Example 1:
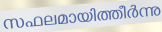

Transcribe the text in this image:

സഫലമായിത്തീർന്നു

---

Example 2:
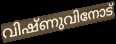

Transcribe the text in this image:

വിഷ്ണുവിനോട്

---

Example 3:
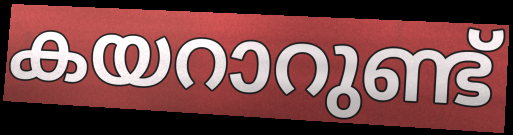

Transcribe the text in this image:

കയറാറുണ്ട്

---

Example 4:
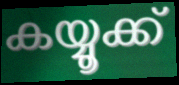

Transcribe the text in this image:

കയ്യൂക്ക്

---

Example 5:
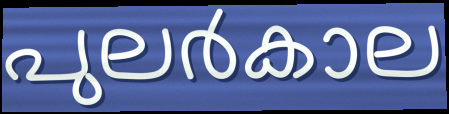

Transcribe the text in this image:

പുലർകാല